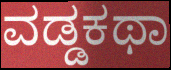
ವಡ್ಡಕಥಾ